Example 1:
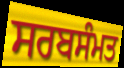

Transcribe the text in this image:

ਸਰਬਸੰਮਤ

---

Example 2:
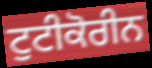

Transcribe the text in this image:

ਟੁਟੀਕੋਰੀਨ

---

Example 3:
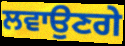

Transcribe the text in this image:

ਲਵਾਉਣਗੇ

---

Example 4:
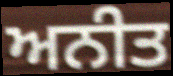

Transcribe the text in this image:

ਅਨੀਤ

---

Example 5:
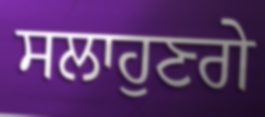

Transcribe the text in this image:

ਸਲਾਹੁਣਗੇ